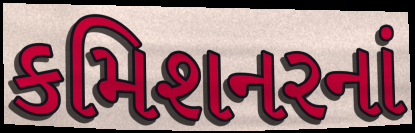
કમિશનરનાં